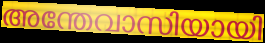
അന്തേവാസിയായി